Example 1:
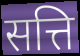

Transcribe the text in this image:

सत्ति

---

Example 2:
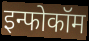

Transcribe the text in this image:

इन्फोकॉम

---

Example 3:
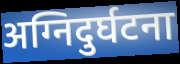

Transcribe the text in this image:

अग्निदुर्घटना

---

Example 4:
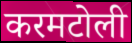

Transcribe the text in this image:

करमटोली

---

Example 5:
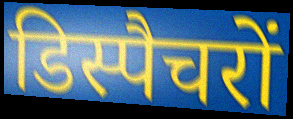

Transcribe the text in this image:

डिस्पैचरों